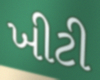
ખીટી